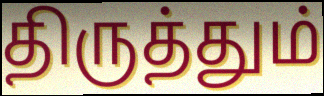
திருத்தும்